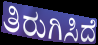
ತಿರುಗಿಸಿದೆ